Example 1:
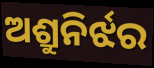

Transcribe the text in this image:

ଅଶ୍ରୁନିର୍ଝର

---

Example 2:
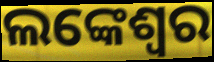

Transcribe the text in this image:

ଲଙ୍କେଶ୍ବର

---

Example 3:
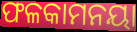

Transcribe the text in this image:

ଫଳକାମନୟା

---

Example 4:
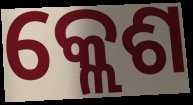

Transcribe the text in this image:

କ୍ଲେଶ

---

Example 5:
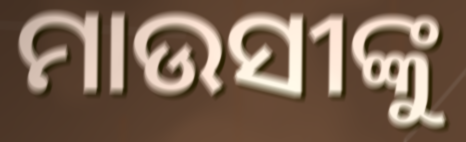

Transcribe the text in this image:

ମାଉସୀଙ୍କୁ